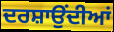
ਦਰਸ਼ਾਉਂਦੀਆਂ